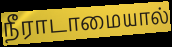
நீராடாமையால்